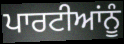
ਪਾਰਟੀਆਂਨੂੰ